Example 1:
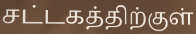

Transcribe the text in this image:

சட்டகத்திற்குள்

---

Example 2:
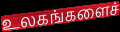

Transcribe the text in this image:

உலகங்களைச்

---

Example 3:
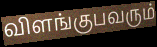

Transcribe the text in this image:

விளங்குபவரும்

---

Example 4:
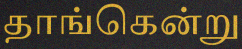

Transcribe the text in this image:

தாங்கென்று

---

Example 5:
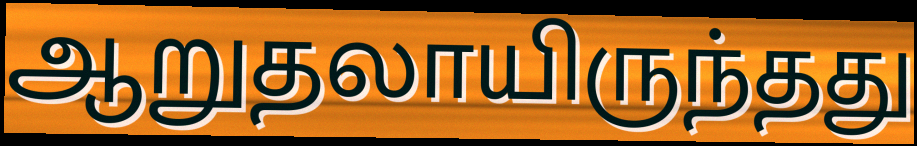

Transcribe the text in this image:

ஆறுதலாயிருந்தது